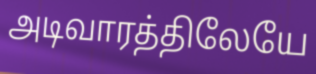
அடிவாரத்திலேயே